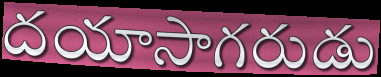
దయాసాగరుడు